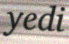
yedi